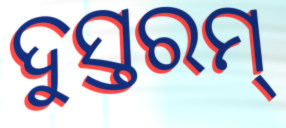
ଦୁସ୍ତରମ୍